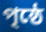
পৃষ্ঠে